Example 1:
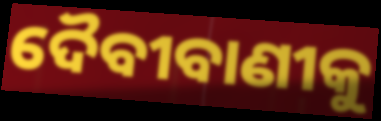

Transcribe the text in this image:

ଦୈବୀବାଣୀକୁ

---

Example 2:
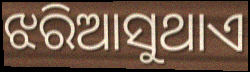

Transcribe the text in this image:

ଝରିଆସୁଥାଏ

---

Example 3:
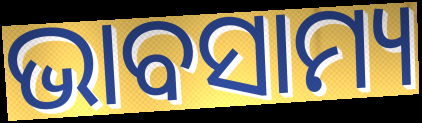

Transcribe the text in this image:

ଭାବସାମ୍ୟ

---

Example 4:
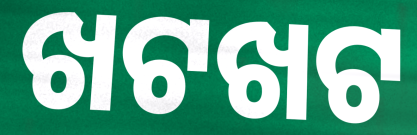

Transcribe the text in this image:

ଖଟଖଟ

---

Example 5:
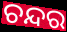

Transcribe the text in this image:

ଚନ୍ଦର